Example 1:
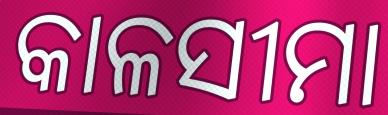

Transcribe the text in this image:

କାଳସୀମା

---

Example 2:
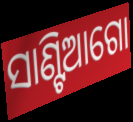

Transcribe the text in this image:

ସାଣ୍ଟିଆଗୋ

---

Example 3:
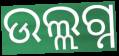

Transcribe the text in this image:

ଉଲ୍ଲଗ୍ନ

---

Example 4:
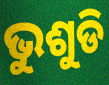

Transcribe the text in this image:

ଭୁଶୁଡି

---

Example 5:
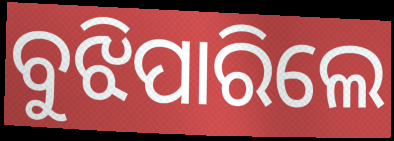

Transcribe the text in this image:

ବୁଝିପାରିଲେ